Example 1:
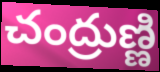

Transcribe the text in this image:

చంద్రుణ్ణి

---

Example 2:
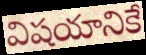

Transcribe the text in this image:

విషయానికే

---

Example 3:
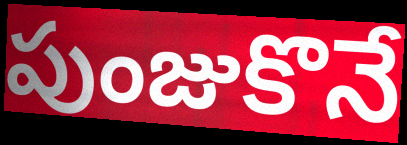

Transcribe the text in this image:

పుంజుకొనే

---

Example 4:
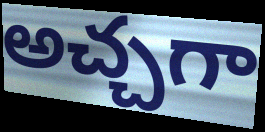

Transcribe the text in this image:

అచ్చగా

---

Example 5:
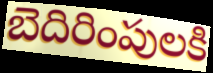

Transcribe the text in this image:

బెదిరింపులకి